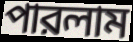
পারলাম